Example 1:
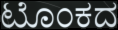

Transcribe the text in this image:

ಟೊಂಕದ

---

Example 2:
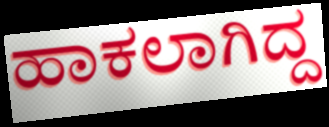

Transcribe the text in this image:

ಹಾಕಲಾಗಿದ್ದ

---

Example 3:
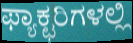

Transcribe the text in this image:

ಫ್ಯಾಕ್ಟರಿಗಳಲ್ಲಿ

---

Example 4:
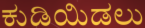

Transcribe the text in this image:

ಕುಡಿಯಿಡಲು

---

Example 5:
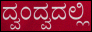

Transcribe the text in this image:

ದ್ವಂದ್ವದಲ್ಲಿ